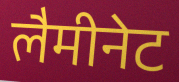
लैमीनेट